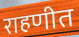
राहणीत